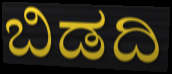
ಬಿಡದಿ